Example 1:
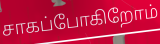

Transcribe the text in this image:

சாகப்போகிறோம்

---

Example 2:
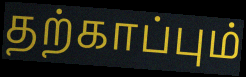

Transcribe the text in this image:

தற்காப்பும்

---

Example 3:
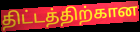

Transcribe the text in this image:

திட்டத்திற்கான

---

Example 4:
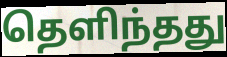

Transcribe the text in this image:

தெளிந்தது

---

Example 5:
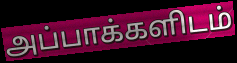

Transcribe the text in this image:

அப்பாக்களிடம்